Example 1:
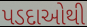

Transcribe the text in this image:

પડદાઓથી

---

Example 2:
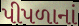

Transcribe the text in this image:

પીપળાનાં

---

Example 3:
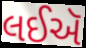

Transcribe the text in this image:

લઈઍ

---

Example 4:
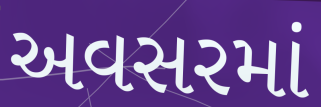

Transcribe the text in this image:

અવસરમાં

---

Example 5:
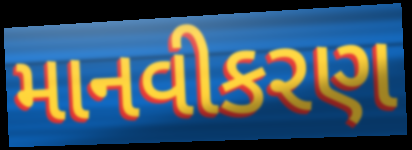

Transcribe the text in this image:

માનવીકરણ